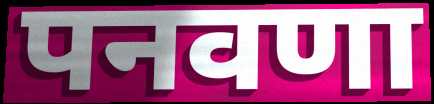
पनवणा